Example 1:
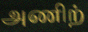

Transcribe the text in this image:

அணிற்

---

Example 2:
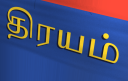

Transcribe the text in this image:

திரயம்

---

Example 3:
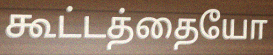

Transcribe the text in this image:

கூட்டத்தையோ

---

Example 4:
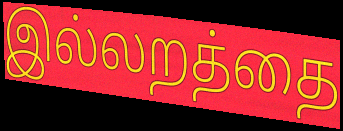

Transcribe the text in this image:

இல்லறத்தை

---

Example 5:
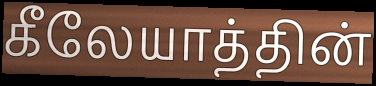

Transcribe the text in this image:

கீலேயாத்தின்